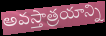
అవస్తాత్రయాన్ని